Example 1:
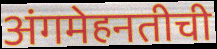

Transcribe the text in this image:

अंगमेहनतीची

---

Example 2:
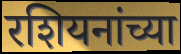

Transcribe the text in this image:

रशियनांच्या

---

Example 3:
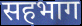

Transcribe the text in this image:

सहभाग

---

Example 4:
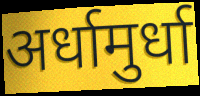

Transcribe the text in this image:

अर्धामुर्धा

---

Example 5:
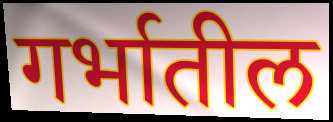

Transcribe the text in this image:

गर्भातील